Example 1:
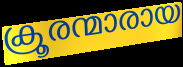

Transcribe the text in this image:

ക്രൂരന്മാരായ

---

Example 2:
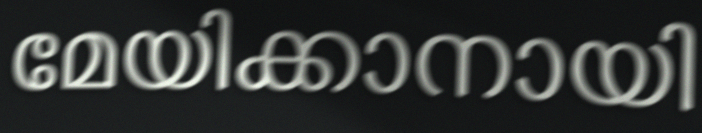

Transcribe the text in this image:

മേയിക്കാനായി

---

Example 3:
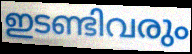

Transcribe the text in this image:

ഇടണ്ടിവരും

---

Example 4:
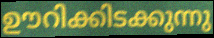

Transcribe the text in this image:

ഊറിക്കിടക്കുന്നു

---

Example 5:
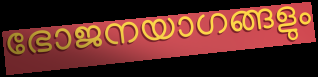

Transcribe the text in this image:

ഭോജനയാഗങ്ങളും